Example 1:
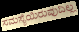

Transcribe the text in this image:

ಸಮಸ್ಯೆಯಿರುವುದಿಲ್ಲ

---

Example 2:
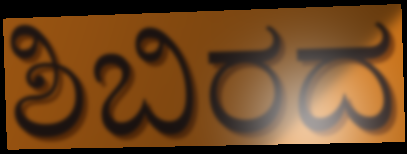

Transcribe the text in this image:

ಶಿಬಿರದ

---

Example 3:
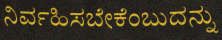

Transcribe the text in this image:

ನಿರ್ವಹಿಸಬೇಕೆಂಬುದನ್ನು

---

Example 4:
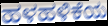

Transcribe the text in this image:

ಹಳಹಳಿಕೆಯ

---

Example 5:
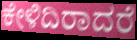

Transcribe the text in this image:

ಕೇಳಿದಿರಾದರೆ